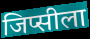
जिप्सीला